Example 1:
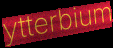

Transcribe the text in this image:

ytterbium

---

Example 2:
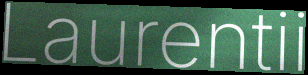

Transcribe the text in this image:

Laurentii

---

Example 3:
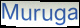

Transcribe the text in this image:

Muruga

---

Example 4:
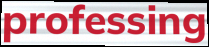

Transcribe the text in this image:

professing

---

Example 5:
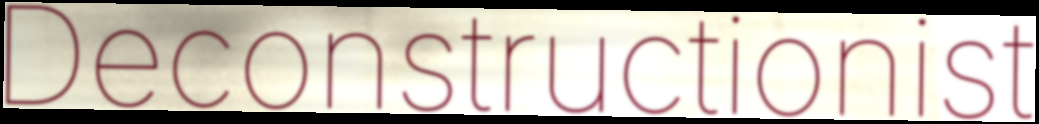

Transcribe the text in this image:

Deconstructionist